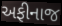
અફીનાજ